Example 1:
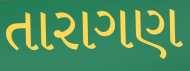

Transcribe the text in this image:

તારાગણ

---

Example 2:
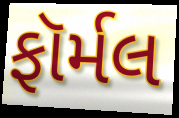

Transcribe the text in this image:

ફૉર્મલ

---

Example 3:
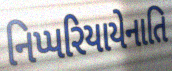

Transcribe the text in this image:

નિપ્પરિયાયેનાતિ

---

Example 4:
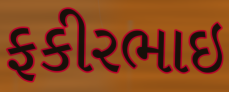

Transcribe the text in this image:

ફકીરભાઇ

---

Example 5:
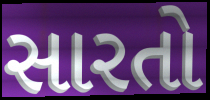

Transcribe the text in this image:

સારતો